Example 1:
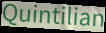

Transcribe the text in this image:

Quintilian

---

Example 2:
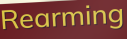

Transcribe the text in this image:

Rearming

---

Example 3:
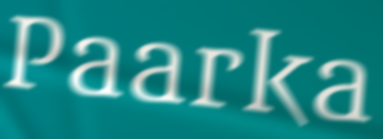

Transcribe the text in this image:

Paarka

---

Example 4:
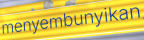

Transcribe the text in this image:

menyembunyikan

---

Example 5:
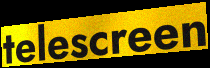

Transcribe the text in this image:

telescreen